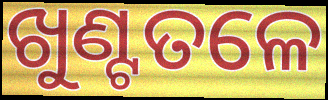
ଖୁଣ୍ଟତଳେ